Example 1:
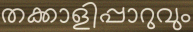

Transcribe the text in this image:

തക്കാളിപ്പാറുവും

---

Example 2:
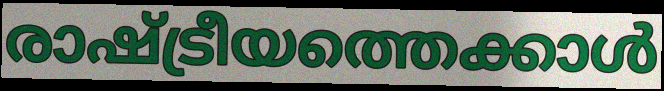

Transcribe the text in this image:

രാഷ്ട്രീയത്തെക്കാൾ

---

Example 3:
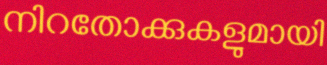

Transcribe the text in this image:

നിറതോക്കുകളുമായി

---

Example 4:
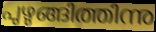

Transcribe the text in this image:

പുഴുങ്ങിത്തിന്നു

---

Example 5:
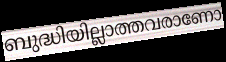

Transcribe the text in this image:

ബുദ്ധിയില്ലാത്തവരാണോ